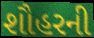
શૌહરની